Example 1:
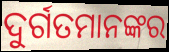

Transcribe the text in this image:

ଦୁର୍ଗତମାନଙ୍କର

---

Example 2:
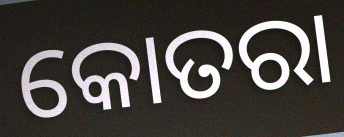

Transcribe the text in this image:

କୋତରା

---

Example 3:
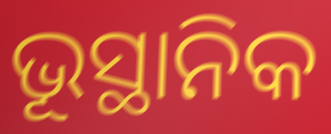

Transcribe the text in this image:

ଭୂସ୍ଥାନିକ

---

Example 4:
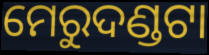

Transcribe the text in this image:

ମେରୁଦଣ୍ଡଟା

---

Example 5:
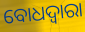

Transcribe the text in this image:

ବୋଧଦ୍ଵାରା